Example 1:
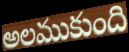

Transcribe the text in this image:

అలముకుంది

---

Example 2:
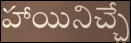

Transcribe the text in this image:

హాయినిచ్చే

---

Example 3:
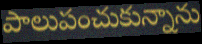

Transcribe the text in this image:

పాలుపంచుకున్నాను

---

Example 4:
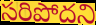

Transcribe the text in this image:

సరిపోదని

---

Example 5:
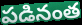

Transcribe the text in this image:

పడినంత